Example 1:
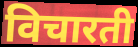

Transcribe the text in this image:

विचारती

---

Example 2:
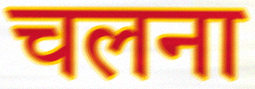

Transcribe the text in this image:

चलना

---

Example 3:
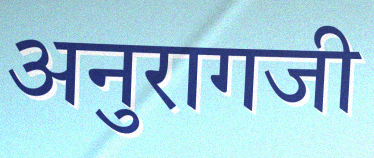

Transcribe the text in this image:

अनुरागजी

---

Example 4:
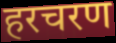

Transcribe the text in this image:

हरचरण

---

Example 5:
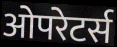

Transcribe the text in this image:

ओपरेटर्स